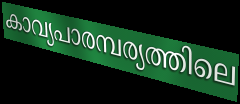
കാവ്യപാരമ്പര്യത്തിലെ